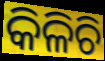
କିଳିଚି